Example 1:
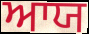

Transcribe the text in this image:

ਆਯ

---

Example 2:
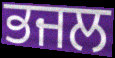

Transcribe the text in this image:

ਭਜਲ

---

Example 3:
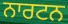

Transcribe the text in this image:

ਨਾਰਟਨ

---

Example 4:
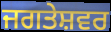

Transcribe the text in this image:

ਜਗਤੇਸ਼ਵਰ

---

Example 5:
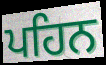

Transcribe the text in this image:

ਪਹਿਨ